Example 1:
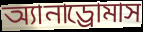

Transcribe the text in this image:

অ্যানাড্রোমাস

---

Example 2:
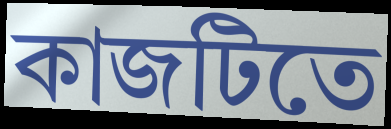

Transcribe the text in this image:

কাজটিতে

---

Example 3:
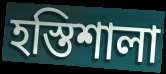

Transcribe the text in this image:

হস্তিশালা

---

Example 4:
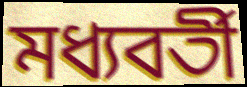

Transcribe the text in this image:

মধ্যবর্তী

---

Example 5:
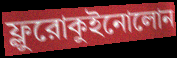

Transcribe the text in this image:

ফ্লুরোকুইনোলোন